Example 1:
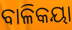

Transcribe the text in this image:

ବାଳିକୟା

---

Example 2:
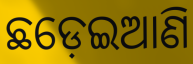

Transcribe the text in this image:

ଛଡ଼େଇଆଣି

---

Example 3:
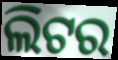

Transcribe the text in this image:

ଲିଟର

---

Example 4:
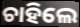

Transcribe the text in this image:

ଚାହିଲେ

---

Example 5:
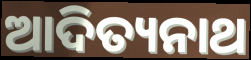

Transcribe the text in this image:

ଆଦିତ୍ୟନାଥ